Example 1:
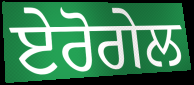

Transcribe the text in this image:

ਏਰੋਗੇਲ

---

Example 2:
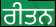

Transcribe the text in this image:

ਰੀਤਨ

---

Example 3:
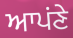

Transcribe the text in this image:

ਆਪਂਣੇ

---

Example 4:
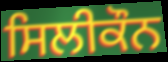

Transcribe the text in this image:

ਸਿਲੀਕੌਨ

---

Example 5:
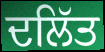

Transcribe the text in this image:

ਦਲਿੱਤ